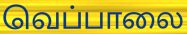
வெப்பாலை